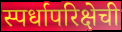
स्पर्धापरिक्षेची